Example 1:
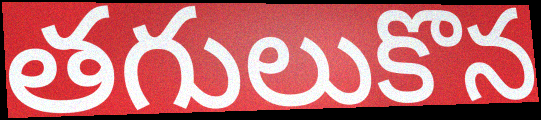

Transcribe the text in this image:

తగులుకొన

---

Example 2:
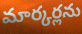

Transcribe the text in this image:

మార్కర్లను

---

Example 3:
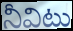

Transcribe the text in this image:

నీవిటు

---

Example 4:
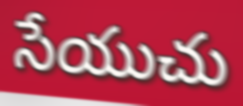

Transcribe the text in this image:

సేయుచు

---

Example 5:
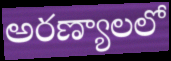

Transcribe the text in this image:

అరణ్యాలలో